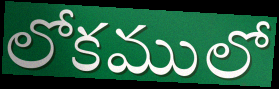
లోకములో